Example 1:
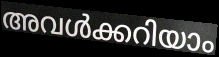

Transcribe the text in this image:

അവൾക്കറിയാം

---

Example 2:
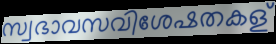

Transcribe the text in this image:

സ്വഭാവസവിശേഷതകള്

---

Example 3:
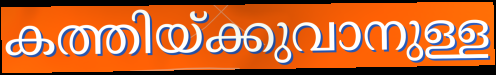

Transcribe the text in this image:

കത്തിയ്ക്കുവാനുള്ള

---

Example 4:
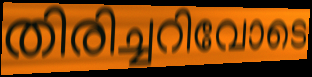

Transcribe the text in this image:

തിരിച്ചറിവോടെ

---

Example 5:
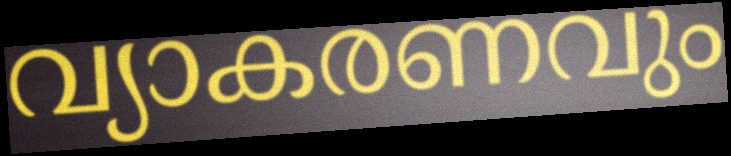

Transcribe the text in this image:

വ്യാകരണവും